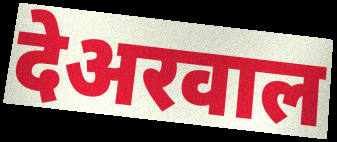
देअरवाल